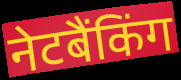
नेटबैंकिंग